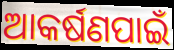
ଆକର୍ଷଣପାଇଁ